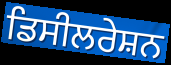
ਡਿਸੀਲਰੇਸ਼ਨ